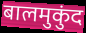
बालमुकुंद